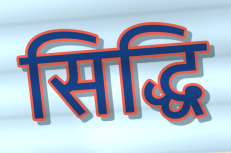
सिद्धि